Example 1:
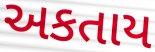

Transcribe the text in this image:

અકતાય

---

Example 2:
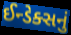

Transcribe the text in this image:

ઈન્ડેક્સનું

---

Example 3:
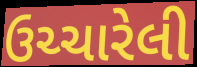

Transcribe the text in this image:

ઉચ્ચારેલી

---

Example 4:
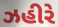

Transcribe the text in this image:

ઝહીરે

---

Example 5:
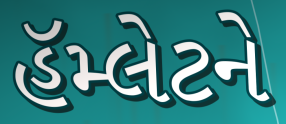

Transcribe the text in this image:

હૅમ્લેટને